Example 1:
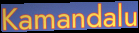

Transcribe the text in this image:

Kamandalu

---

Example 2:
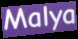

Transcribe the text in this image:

Malya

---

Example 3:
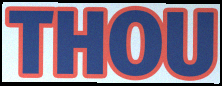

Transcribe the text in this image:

THOU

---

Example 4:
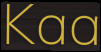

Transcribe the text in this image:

Kaa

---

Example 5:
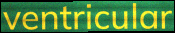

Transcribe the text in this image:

ventricular